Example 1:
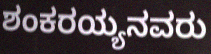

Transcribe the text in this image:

ಶಂಕರಯ್ಯನವರು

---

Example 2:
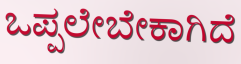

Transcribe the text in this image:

ಒಪ್ಪಲೇಬೇಕಾಗಿದೆ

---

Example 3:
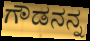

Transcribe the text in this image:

ಗೌಡನನ್ನ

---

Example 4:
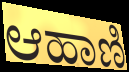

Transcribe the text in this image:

ಆಹಾಣಿ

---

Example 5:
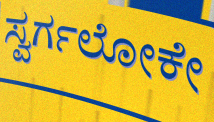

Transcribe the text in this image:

ಸ್ವರ್ಗಲೋಕೇ